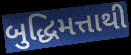
બુદ્ધિમત્તાથી